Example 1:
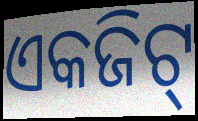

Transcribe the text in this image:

ଏକଜିଟ୍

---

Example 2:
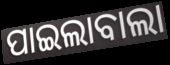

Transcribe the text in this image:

ପାଇଲାବାଲା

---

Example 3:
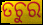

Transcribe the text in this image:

ତଚୁର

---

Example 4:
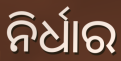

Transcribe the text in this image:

ନିର୍ଧାର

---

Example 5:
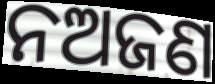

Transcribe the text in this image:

ନଅଜଣ